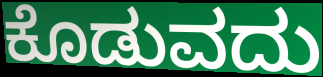
ಕೊಡುವದು